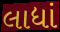
લાદ્યાં